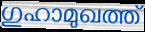
ഗുഹാമുഖത്ത്